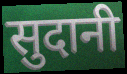
सुदानी